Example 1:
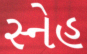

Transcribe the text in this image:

સ્નેહ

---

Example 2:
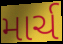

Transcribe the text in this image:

માર્ચ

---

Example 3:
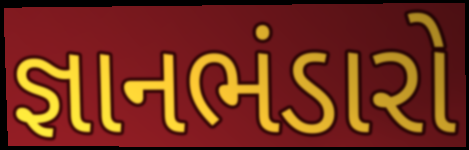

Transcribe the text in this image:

જ્ઞાનભંડારો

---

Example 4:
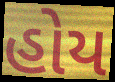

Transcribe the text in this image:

હોય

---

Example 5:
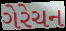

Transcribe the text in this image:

ગેરેચન